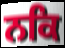
ਨਕਿ